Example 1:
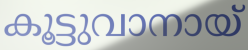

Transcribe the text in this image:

കൂട്ടുവാനായ്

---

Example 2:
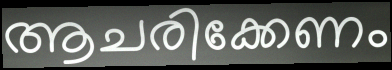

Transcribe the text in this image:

ആചരിക്കേണം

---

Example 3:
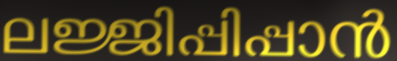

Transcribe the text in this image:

ലജ്ജിപ്പിപ്പാൻ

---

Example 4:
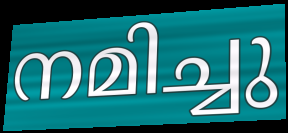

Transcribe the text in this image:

നമിച്ചു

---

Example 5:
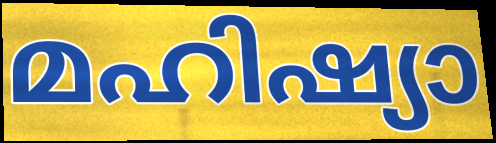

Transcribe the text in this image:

മഹിഷ്യാ